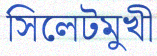
সিলেটমুখী